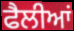
ਫੈਲੀਆਂ